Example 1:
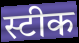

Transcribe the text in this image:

स्टीक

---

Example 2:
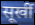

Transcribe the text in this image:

सूखीं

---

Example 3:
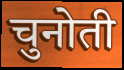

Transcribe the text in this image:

चुनोती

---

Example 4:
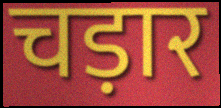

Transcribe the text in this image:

चड़ार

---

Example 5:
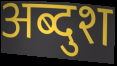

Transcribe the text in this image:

अब्दुश